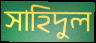
সাহিদুল